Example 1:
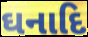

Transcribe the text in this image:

ઘનાદિ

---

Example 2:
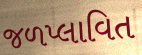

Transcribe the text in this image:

જળપ્લાવિત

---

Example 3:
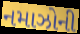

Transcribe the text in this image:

નમાઝોની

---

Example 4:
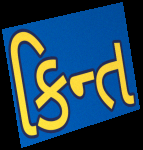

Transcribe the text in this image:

કિન્ત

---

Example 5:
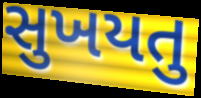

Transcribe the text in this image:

સુખયતુ